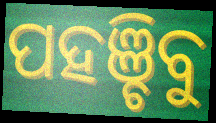
ପହଞ୍ଚିବୁ